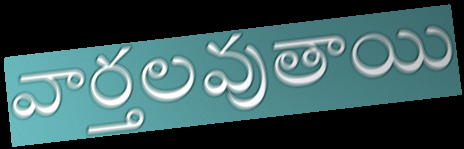
వార్తలవుతాయి